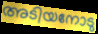
അടിയനോടു